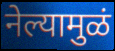
नेल्यामुळं